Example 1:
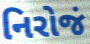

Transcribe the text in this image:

નિરોજં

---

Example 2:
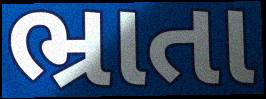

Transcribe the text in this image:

ભ્રાતા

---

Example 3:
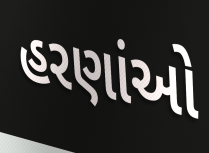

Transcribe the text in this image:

હરણાંઓ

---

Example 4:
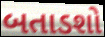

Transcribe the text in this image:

બતાડશો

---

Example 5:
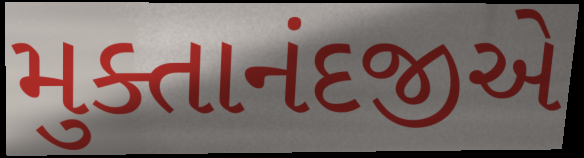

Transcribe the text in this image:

મુક્તાનંદજીએ